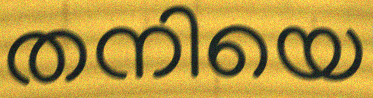
തനിയെ